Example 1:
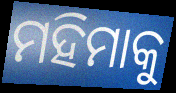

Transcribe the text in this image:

ମହିମାକୁ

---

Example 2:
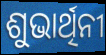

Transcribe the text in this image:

ଶୁଭାର୍ଥିନୀ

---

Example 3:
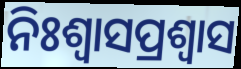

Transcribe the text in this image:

ନିଃଶ୍ୱାସପ୍ରଶ୍ୱାସ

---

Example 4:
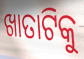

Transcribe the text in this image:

ଖାତାଟିକୁ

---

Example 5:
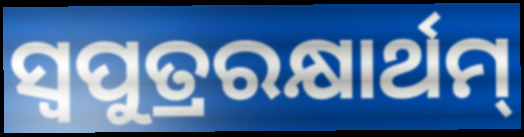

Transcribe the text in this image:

ସ୍ଵପୁତ୍ରରକ୍ଷାର୍ଥମ୍